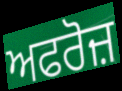
ਅਫਰੋਜ਼